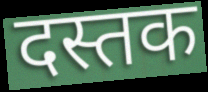
दस्तक